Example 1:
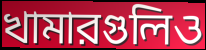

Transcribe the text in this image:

খামারগুলিও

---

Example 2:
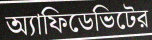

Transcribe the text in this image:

অ্যাফিডেভিটের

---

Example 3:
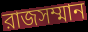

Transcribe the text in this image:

রাজসম্মান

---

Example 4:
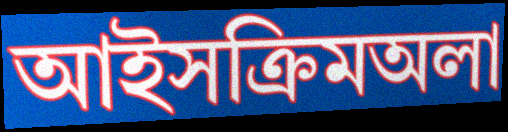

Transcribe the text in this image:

আইসক্রিমঅলা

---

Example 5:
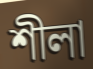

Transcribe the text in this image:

শীলা